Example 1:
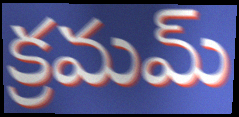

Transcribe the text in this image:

క్రమమ్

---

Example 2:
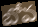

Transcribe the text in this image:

బోవ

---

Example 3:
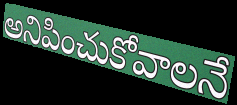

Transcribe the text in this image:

అనిపించుకోవాలనే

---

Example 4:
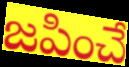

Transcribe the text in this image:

జపించే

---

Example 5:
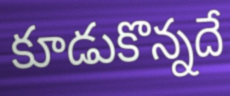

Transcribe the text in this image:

కూడుకొన్నదే